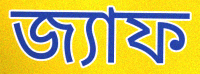
জ্যাফ